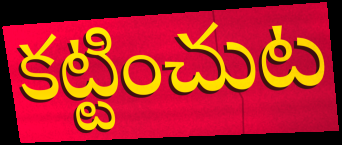
కట్టించుట